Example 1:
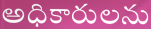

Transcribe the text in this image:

అధికారులను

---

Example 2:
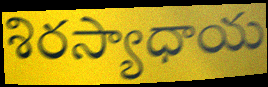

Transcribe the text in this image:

శిరస్యాధాయ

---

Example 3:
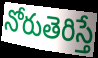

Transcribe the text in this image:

నోరుతెరిస్తే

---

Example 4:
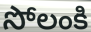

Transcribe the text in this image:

సోలంకి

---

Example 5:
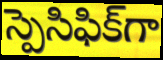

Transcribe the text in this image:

స్పెసిఫిక్‌గా